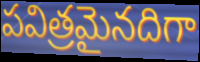
పవిత్రమైనదిగా